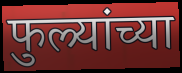
फुल्यांच्या